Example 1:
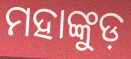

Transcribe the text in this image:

ମହାଙ୍କୁଡ଼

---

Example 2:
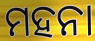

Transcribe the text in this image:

ମହନା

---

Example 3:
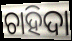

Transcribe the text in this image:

ଚାହିଦା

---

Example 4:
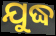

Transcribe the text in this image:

ଯୁଦ୍ଧ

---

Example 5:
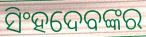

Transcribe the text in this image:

ସିଂହଦେବଙ୍କର